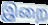
இறை